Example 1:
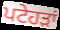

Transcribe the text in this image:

ਪਟੇਹੜਾਂ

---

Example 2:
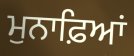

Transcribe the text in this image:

ਮੁਨਾਫ਼ਿਆਂ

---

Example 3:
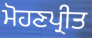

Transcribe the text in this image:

ਮੋਹਣਪ੍ਰੀਤ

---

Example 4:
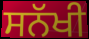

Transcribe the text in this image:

ਸਨੱਖੀ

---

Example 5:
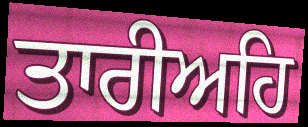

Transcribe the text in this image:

ਤਾਰੀਅਹਿ